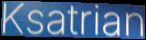
Ksatrian